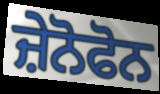
ਜ਼ੇਨੋਫੋਨ